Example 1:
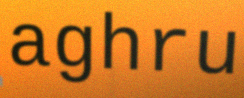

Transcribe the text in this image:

aghru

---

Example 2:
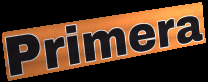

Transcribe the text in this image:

Primera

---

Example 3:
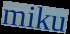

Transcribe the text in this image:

miku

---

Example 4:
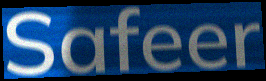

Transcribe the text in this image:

Safeer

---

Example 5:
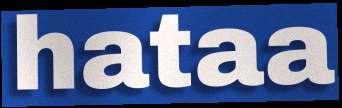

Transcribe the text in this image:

hataa